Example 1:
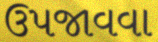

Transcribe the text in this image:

ઉપજાવવા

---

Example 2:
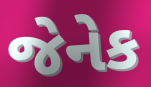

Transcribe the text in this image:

જેનેક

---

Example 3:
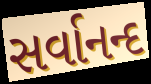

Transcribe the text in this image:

સર્વાનન્દ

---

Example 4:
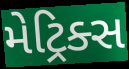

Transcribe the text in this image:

મેટ્રિક્સ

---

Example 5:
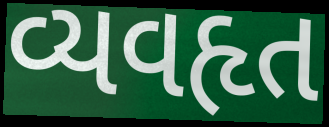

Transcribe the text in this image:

વ્યવહૃત